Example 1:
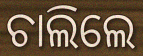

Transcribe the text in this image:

ଚାଲିଲେ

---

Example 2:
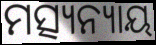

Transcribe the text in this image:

ମତ୍ସ୍ୟନ୍ୟାୟ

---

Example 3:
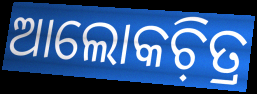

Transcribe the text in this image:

ଆଲୋକଚ଼ିତ୍ର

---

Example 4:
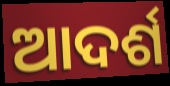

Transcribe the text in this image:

ଆଦର୍ଶ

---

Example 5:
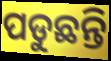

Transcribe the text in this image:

ପଡୁଛନ୍ତି